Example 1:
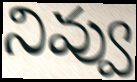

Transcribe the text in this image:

నివ్వు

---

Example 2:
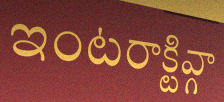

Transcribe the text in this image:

ఇంటరాక్టివ్గా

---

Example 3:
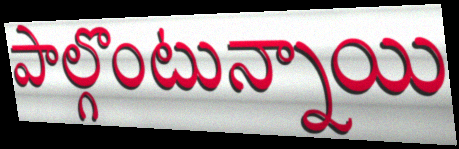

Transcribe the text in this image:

పాల్గొంటున్నాయి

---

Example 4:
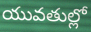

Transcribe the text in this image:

యువతుల్లో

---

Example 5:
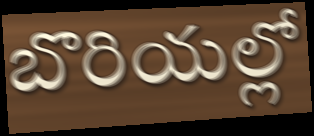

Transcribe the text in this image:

బొరియల్లో